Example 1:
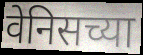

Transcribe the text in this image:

वेनिसच्या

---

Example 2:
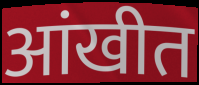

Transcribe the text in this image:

आंखीत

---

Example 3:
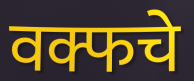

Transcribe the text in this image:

वक्फचे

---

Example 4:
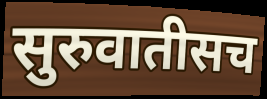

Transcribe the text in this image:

सुरुवातीसच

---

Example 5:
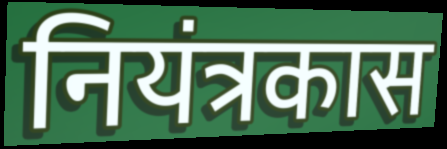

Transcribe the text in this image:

नियंत्रकास